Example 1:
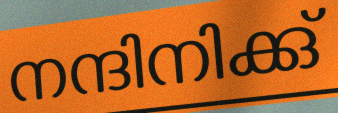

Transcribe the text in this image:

നന്ദിനിക്കു്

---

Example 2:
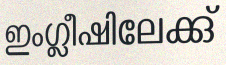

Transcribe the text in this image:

ഇംഗ്ലീഷിലേക്കു്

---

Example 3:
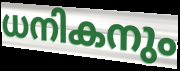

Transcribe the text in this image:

ധനികനും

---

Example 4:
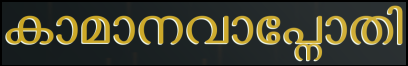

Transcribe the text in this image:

കാമാനവാപ്നോതി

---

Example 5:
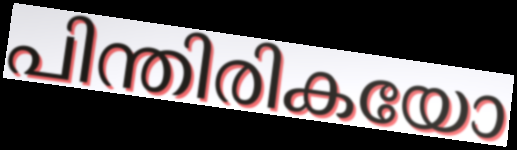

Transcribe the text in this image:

പിന്തിരികയോ